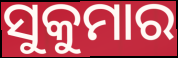
ସୁକୁମାର